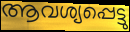
ആവശ്യപ്പെട്ടു